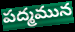
పద్మమున